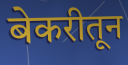
बेकरीतून